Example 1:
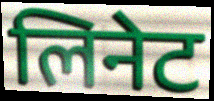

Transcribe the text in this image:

लिनेट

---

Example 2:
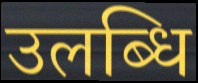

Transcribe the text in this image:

उलब्धि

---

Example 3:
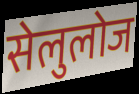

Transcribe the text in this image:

सेलुलोज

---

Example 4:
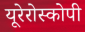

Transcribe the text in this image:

यूरेरोस्कोपी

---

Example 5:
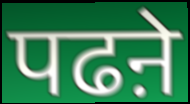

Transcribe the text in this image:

पढऩे